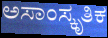
ಅಸಾಂಸ್ಕೃತಿಕ